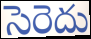
సెరెదు